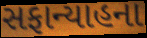
સફાન્યાહના